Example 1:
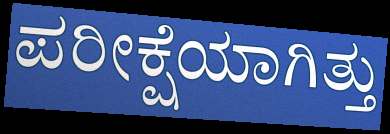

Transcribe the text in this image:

ಪರೀಕ್ಷೆಯಾಗಿತ್ತು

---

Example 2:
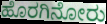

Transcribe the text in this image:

ಹೊರಗಿನೋರು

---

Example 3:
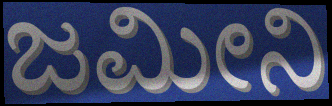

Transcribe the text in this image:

ಜಮೀನಿ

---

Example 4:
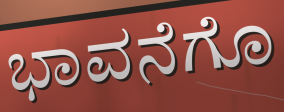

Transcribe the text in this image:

ಭಾವನೆಗೊ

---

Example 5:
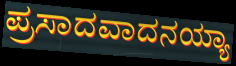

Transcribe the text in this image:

ಪ್ರಸಾದವಾದನಯ್ಯಾ